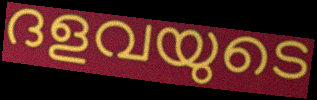
ദളവയുടെ